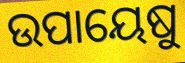
ଉପାୟେଷୁ